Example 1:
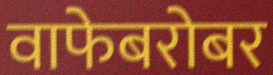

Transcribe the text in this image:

वाफेबरोबर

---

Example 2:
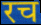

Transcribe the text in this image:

रच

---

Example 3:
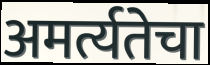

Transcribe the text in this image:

अमर्त्यतेचा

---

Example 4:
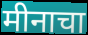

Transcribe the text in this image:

मीनाचा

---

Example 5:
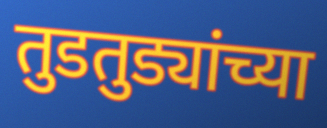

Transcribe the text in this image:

तुडतुड्यांच्या